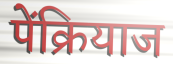
पेंक्रियाज